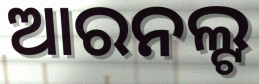
ଆରନଲ୍ଟ